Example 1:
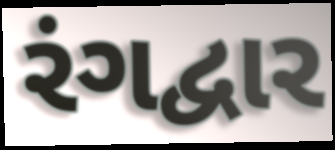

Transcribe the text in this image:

રંગદ્વાર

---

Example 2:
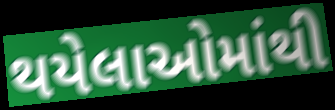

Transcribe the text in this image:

થયેલાઓમાંથી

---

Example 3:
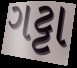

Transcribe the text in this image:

ગટ્ટા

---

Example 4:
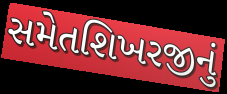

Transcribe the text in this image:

સમેતશિખરજીનું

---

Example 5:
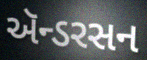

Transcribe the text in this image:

ઍન્ડરસન